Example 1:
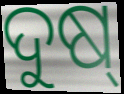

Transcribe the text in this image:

ଦୁଷ୍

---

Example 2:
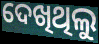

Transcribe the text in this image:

ଦେଖିଥିଲୁ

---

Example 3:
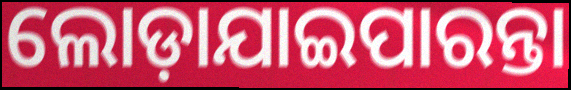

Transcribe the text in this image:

ଲୋଡ଼ାଯାଇପାରନ୍ତା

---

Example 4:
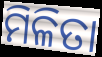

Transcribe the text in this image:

ମିଳିତା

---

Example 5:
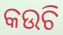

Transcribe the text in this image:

କଉଚି